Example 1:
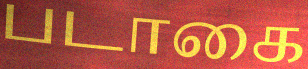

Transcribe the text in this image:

படாகை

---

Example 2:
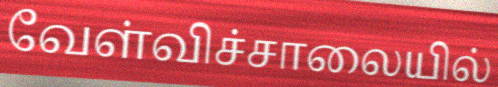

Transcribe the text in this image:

வேள்விச்சாலையில்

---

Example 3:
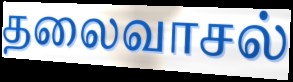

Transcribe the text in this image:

தலைவாசல்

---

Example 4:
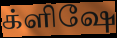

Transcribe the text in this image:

க்ளிஷே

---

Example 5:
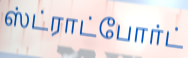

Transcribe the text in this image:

ஸ்ட்ராட்போர்ட்